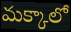
మక్కాలో